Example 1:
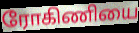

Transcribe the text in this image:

ரோகிணியை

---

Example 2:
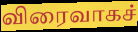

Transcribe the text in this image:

விரைவாகச்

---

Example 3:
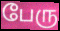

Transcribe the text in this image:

பேரு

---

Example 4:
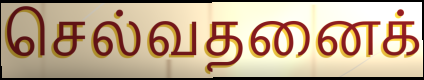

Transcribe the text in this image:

செல்வதனைக்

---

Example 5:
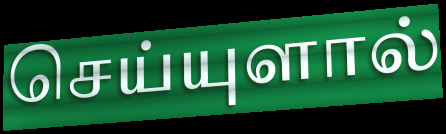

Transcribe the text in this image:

செய்யுளால்